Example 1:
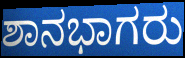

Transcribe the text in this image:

ಶಾನಭಾಗರು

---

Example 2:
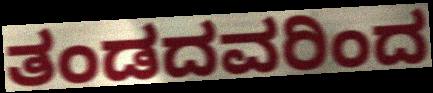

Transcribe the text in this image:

ತಂಡದವರಿಂದ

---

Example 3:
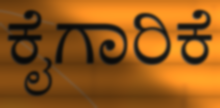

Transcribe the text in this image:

ಕೈಗಾರಿಕೆ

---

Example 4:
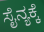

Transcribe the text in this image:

ಸೈನ್ಯಕ್ಕೆ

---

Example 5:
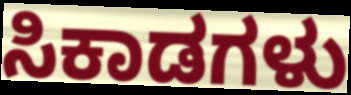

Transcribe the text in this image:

ಸಿಕಾಡಗಳು